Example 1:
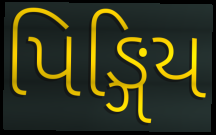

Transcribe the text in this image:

પિઙ્ગિય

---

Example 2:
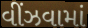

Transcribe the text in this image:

વીંઝવામાં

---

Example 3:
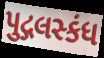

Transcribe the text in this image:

પુદ્ગલસ્કંધ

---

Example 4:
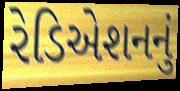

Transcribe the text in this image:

રેડિએશનનું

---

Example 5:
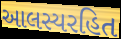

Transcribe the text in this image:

આલસ્યરહિત